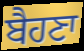
ਬੈਹਣਾ